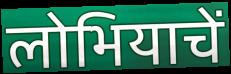
लोभियाचें